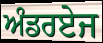
ਅੰਡਰਏਜ